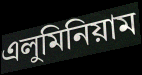
এলুমিনিয়াম